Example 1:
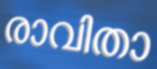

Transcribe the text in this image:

രാവിതാ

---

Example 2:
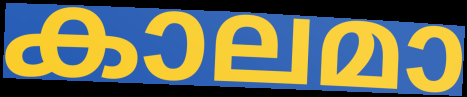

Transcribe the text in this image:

കാലമാ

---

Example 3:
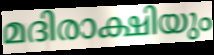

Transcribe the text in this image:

മദിരാക്ഷിയും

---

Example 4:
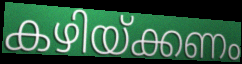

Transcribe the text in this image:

കഴിയ്ക്കണം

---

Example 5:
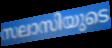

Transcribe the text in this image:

സലാസിയുടെ